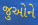
જુઓને